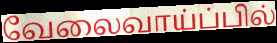
வேலைவாய்ப்பில்